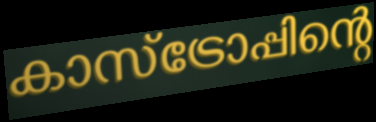
കാസ്ട്രോപ്പിന്റെ